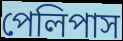
পেলিপাস